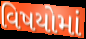
વિષયોમાં